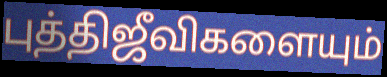
புத்திஜீவிகளையும்